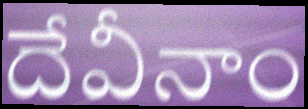
దేవీనాం